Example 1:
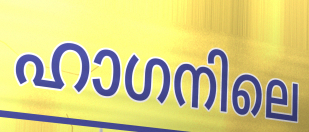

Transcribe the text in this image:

ഹാഗനിലെ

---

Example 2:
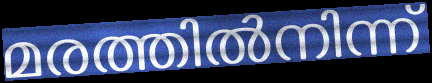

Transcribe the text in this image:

മരത്തിൽനിന്ന്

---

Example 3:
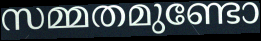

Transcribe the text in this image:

സമ്മതമുണ്ടോ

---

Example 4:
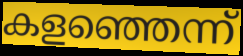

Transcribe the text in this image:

കളഞ്ഞെന്ന്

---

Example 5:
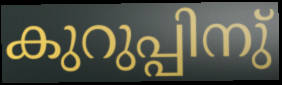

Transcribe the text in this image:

കുറുപ്പിനു്